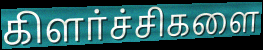
கிளர்ச்சிகளை